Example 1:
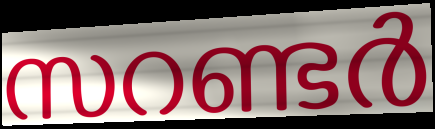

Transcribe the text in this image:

സറണ്ടർ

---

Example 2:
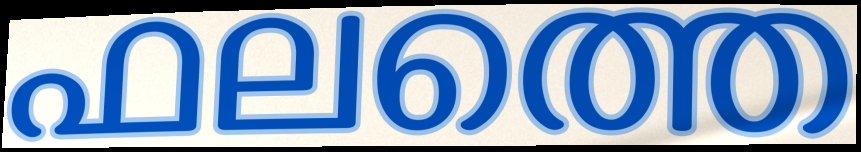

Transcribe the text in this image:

ഫലത്തെ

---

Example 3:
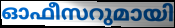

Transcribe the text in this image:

ഓഫീസറുമായി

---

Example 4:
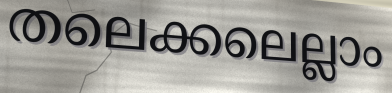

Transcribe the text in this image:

തലെക്കലെല്ലാം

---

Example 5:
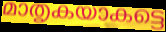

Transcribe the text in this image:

മാതൃകയാകട്ടെ